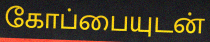
கோப்பையுடன்